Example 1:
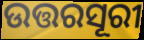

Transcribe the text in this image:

ଉତ୍ତରସୂରୀ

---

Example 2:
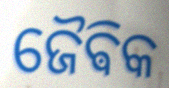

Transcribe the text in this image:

ଜୈଵିକ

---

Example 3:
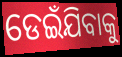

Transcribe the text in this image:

ଡେଇଁଯିବାକୁ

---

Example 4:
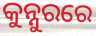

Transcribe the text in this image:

କୁନ୍ନୁରରେ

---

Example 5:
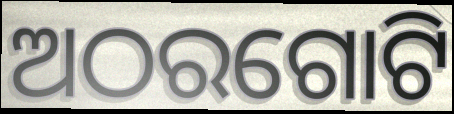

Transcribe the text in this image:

ଅଠରଗୋଟି